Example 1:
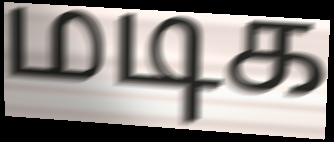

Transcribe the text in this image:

மடிக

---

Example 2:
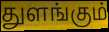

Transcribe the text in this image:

துளங்கும்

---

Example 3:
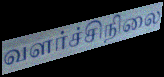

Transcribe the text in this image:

வளர்ச்சிநிலை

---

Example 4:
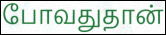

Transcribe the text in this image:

போவதுதான்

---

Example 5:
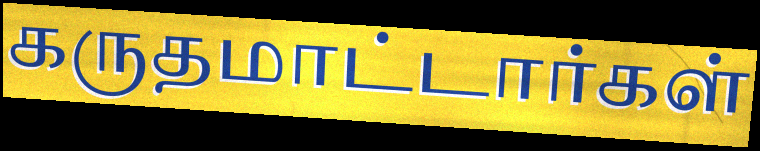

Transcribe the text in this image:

கருதமாட்டார்கள்